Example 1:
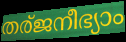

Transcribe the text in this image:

തര്ജനീഭ്യാം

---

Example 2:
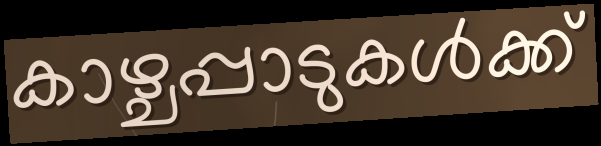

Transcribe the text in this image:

കാഴ്ചപ്പാടുകൾക്ക്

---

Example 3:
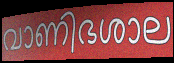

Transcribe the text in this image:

വാണിഭശാല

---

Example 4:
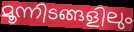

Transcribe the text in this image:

മൂന്നിടങ്ങളിലും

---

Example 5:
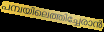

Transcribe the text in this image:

പമ്പയിലെത്തിച്ചേരാൻ